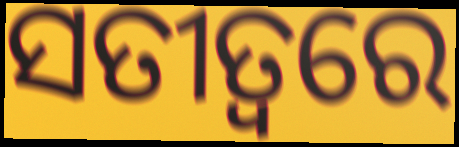
ସତୀତ୍ୱରେ